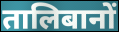
तालिबानों